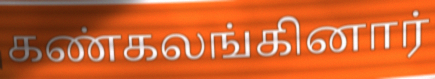
கண்கலங்கினார்